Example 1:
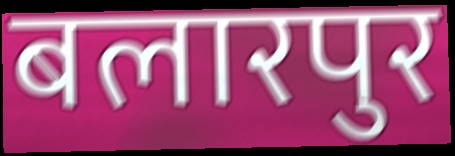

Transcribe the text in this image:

बलारपुर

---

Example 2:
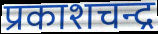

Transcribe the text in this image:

प्रकाशचन्द्र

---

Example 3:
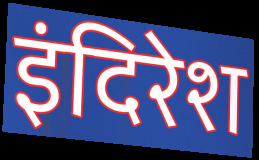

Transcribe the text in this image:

इंदिरेश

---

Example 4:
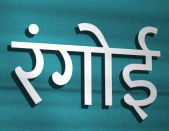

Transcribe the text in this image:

रंगोई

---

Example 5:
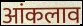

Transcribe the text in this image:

आंकलाव